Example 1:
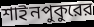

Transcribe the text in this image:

শাইনপুকুরের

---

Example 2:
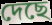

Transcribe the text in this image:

দেছে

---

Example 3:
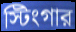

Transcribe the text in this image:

স্টিংগার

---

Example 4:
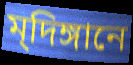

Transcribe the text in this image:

ম্‌দিঙ্গানে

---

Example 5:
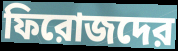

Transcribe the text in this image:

ফিরোজদের